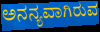
ಅನನ್ಯವಾಗಿರುವ